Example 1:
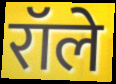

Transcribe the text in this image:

रॉले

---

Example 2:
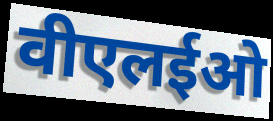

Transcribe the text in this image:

वीएलईओ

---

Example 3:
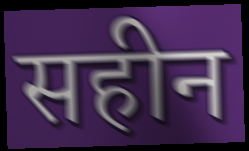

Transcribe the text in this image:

सहीन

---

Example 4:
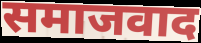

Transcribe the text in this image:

समाजवाद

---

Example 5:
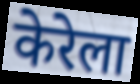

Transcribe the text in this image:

केरेला